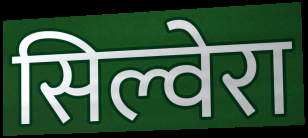
सिल्वेरा